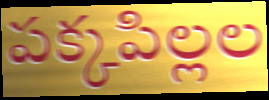
పక్కపిల్లల